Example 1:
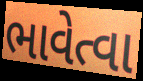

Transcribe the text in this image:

ભાવેત્વા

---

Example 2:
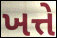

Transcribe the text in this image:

ખત્તે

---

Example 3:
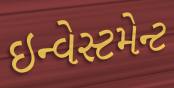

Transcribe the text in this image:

ઇન્વેસ્ટમેન્ટ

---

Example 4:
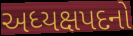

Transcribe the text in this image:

અધ્યક્ષપદનો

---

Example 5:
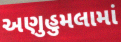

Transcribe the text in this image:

અણુહુમલામાં